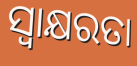
ସ୍ବାକ୍ଷରତା